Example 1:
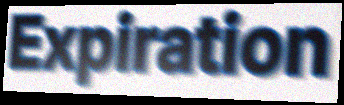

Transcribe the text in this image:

Expiration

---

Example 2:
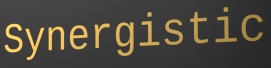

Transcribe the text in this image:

Synergistic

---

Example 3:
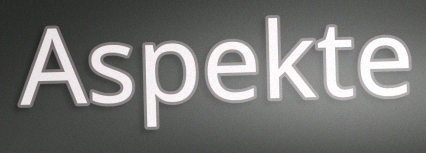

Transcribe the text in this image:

Aspekte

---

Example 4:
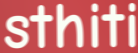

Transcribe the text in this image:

sthiti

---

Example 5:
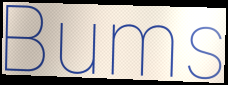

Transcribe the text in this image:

Bums